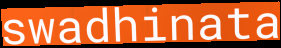
swadhinata